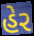
હેર